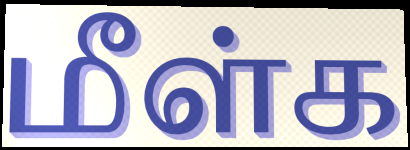
மீள்க